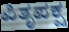
ಪಿತೃಪಕ್ಷ